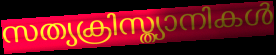
സത്യക്രിസ്ത്യാനികൾ